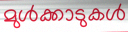
മുൾക്കാടുകൾ